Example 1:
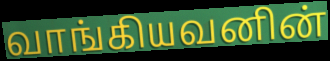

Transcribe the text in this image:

வாங்கியவனின்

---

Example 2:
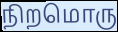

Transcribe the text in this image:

நிறமொரு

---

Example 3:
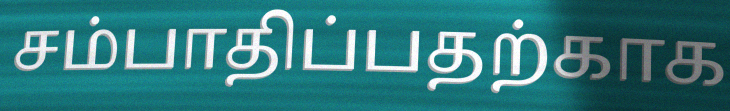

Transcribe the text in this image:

சம்பாதிப்பதற்காக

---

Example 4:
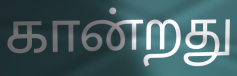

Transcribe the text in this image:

கான்றது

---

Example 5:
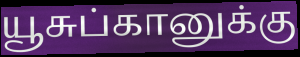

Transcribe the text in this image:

யூசுப்கானுக்கு